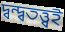
দ্বন্দ্বতত্ত্বই